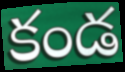
కండ